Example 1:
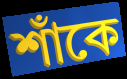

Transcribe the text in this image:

শাঁকে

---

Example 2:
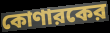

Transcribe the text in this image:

কোণারকের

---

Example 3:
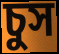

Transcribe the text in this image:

চুস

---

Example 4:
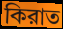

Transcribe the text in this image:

কিরাত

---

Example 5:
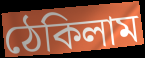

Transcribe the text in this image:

ঠেকিলাম